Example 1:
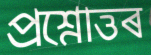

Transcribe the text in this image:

প্ৰশ্নোত্তৰ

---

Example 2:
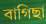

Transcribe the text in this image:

বাগিছা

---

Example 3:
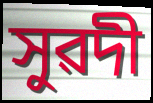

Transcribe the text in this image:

সুৱদী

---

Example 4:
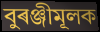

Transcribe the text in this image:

বুৰঞ্জীমূলক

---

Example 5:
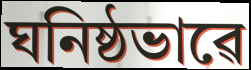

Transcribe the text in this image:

ঘনিষ্ঠভাৱে